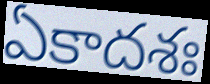
ఏకాదశః